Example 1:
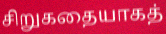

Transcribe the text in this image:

சிறுகதையாகத்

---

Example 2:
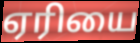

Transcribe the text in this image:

ஏரியை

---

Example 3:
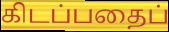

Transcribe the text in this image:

கிடப்பதைப்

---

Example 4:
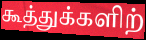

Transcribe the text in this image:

கூத்துக்களிற்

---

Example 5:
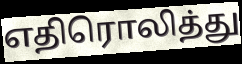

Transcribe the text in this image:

எதிரொலித்து